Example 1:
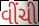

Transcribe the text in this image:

વીંચી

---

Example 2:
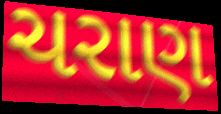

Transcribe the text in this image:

ચરાણ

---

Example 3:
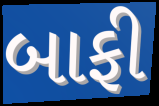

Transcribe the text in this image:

બાફી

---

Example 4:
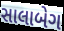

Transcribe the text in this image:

સાલાબેગ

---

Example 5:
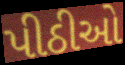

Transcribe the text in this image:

પીઠીઓ